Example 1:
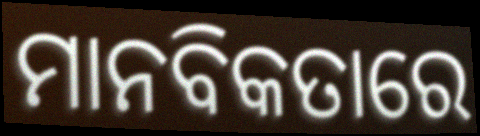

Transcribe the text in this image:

ମାନବିକତାରେ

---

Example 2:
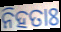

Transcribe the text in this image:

ନିହତାଃ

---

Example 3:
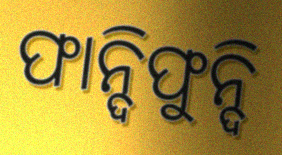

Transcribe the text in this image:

ଫାନ୍ଦିଫୁନ୍ଦି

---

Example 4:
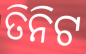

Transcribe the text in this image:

ତିନିଟ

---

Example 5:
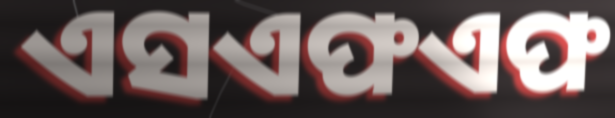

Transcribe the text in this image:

ଏସଏଫଏଫ